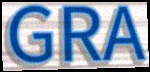
GRA